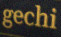
gechi